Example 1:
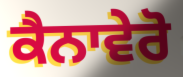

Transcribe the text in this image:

ਕੈਨਾਵੇਰੋ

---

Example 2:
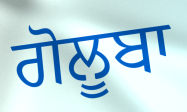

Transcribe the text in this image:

ਗੋਲੂਬਾ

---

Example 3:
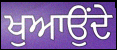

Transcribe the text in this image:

ਖੁਆਉਂਦੇ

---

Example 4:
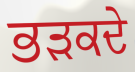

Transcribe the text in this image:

ਭੜਕਦੇ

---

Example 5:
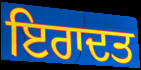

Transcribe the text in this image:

ਇਰਾਦਤ